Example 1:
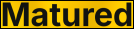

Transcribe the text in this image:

Matured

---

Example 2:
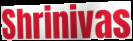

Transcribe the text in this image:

Shrinivas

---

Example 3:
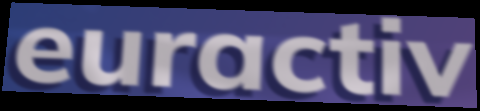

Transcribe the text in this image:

euractiv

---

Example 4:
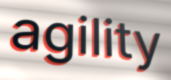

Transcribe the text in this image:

agility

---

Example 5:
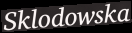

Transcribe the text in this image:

Sklodowska